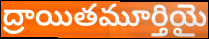
ద్రాయితమూర్తియై